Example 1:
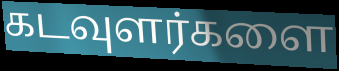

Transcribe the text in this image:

கடவுளர்களை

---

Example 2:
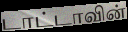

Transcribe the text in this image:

டாட்டாவின்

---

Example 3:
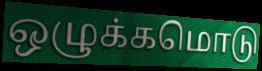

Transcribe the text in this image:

ஒழுக்கமொடு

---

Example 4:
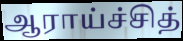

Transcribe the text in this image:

ஆராய்ச்சித்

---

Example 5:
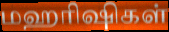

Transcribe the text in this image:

மஹரிஷிகள்